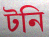
টনি